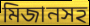
মিজানসহ